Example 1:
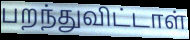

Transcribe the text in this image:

பறந்துவிட்டாள்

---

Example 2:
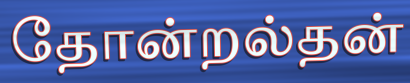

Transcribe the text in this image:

தோன்றல்தன்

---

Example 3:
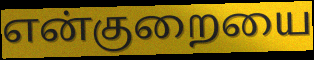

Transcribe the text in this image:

என்குறையை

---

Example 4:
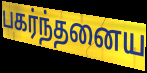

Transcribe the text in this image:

பகர்ந்தனைய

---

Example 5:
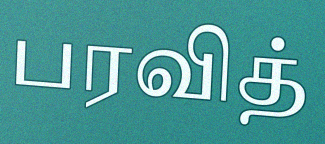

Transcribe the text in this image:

பரவித்